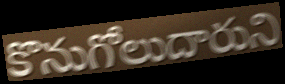
కొనుగోలుదారుని